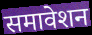
समावेशन